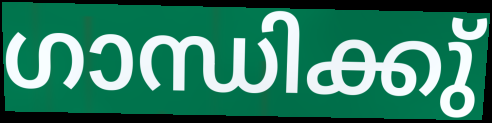
ഗാന്ധിക്കു്